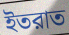
ইতরাত